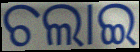
ଚଲାଇ